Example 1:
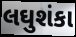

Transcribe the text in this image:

લઘુશંકા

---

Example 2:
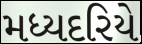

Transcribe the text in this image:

મધ્યદરિયે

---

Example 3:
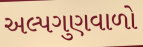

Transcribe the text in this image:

અલ્પગુણવાળો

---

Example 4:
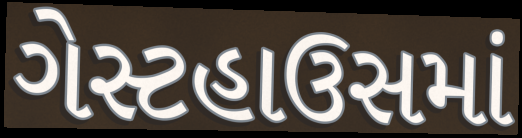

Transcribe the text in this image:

ગેસ્ટહાઉસમાં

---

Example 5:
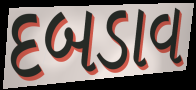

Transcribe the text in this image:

દબડાવ